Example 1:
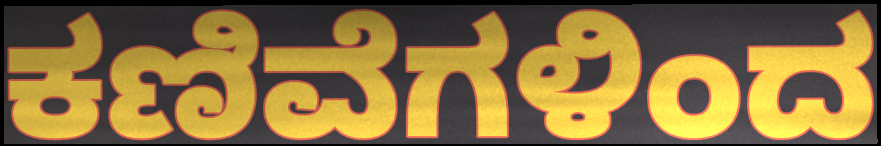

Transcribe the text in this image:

ಕಣಿವೆಗಳಿಂದ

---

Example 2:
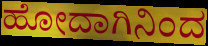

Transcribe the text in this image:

ಹೋದಾಗಿನಿಂದ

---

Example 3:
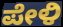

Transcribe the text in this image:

ಪೇಳಿ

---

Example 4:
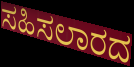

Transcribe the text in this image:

ಸಹಿಸಲಾರದ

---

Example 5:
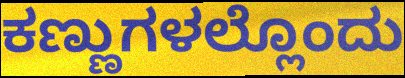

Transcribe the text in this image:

ಕಣ್ಣುಗಳಲ್ಲೊಂದು